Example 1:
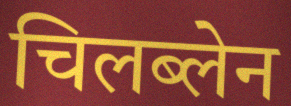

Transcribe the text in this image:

चिलब्लेन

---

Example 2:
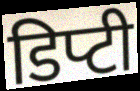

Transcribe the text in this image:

डिप्‍टी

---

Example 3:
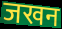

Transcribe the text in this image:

जखन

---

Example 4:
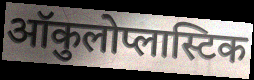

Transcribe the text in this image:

ऑकुलोप्लास्टिक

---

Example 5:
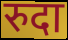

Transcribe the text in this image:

रुदा